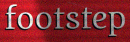
footstep